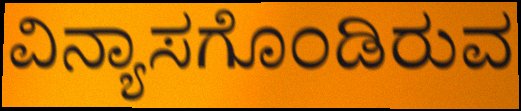
ವಿನ್ಯಾಸಗೊಂಡಿರುವ